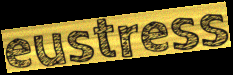
eustress